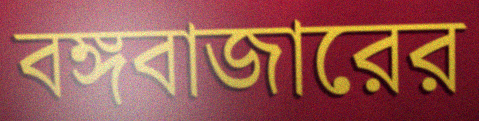
বঙ্গবাজারের